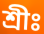
শ্রীঃ